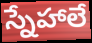
స్నేహాలే